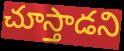
చూస్తాడని